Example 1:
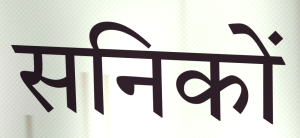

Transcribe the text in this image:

सनिकों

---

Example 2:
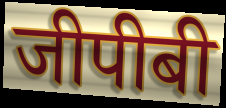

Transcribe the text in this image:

जीपीबी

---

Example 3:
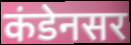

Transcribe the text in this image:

कंडेनसर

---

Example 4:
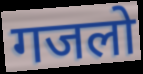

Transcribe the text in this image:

गजलो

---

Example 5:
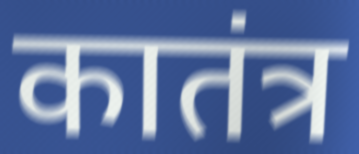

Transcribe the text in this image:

कातंत्र